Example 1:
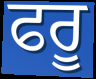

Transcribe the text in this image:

ਫਰੂ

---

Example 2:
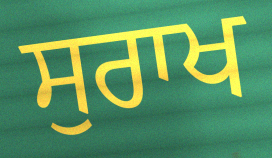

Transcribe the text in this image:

ਸੁਰਾਖ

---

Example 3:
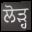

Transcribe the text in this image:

ਲੋੜ੍ਹ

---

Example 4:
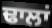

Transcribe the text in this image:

ਢਾਲਾਂ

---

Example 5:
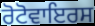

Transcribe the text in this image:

ਰੋਟੋਵਾਇਰਸ